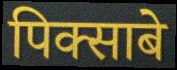
पिक्साबे